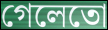
গেলেতো